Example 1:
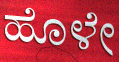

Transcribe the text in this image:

ಹೊಳೇ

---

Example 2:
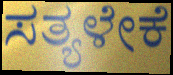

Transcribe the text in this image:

ಸತ್ಯಳೇಕೆ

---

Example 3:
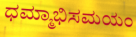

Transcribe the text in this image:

ಧಮ್ಮಾಭಿಸಮಯಂ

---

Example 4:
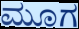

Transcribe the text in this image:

ಮೂಗ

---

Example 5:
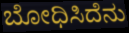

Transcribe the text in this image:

ಬೋಧಿಸಿದೆನು